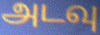
அடவு